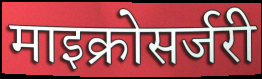
माइक्रोसर्जरी